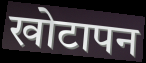
खोटापन